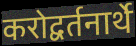
करोद्वर्तनार्थे